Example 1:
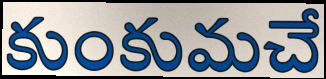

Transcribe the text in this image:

కుంకుమచే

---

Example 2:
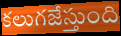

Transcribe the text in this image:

కలుగజేస్తుంది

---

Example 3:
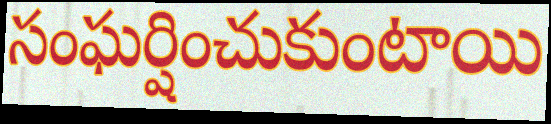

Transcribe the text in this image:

సంఘర్షించుకుంటాయి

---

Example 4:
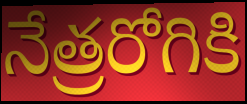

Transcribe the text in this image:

నేత్రరోగికి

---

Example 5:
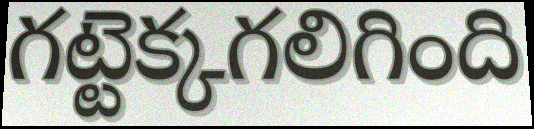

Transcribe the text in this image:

గట్టెక్కగలిగింది